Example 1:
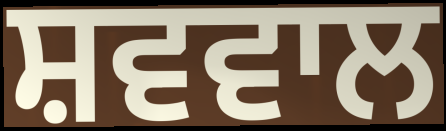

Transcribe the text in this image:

ਸ਼ਵਵਾਲ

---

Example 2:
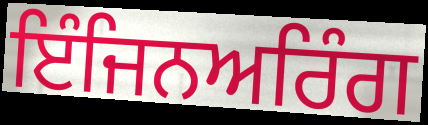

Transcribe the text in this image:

ਇੰਜਿਨਅਰਿੰਗ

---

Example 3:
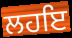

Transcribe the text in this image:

ਲਹਇ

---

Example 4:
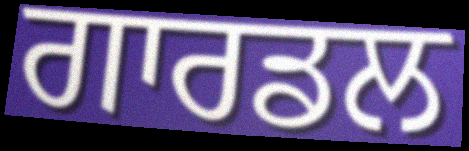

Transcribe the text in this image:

ਗਾਰਡਲ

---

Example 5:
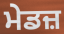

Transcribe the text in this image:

ਮੇਡਜ਼